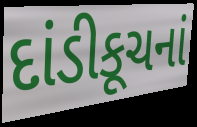
દાંડીકૂચનાં